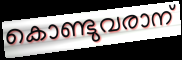
കൊണ്ടുവരാന്